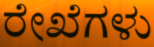
ರೇಖೆಗಳು